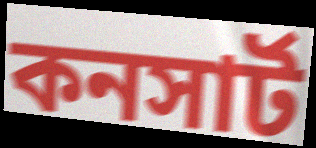
কনসার্ট